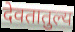
देवतातुल्य